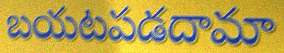
బయటపడదామా